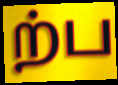
ற்ப